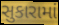
સુકારામાં